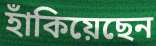
হাঁকিয়েছেন